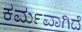
ಕರ್ಮವಾಗಿದೆ